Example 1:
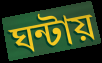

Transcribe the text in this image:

ঘন্টায়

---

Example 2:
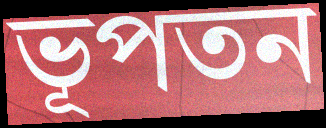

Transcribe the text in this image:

ভূপতন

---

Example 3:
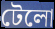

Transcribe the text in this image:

টেলো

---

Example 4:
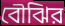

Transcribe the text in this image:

বৌঝির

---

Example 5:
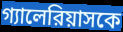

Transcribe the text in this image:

গ্যালেরিয়াসকে